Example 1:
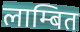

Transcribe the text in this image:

लाम्बित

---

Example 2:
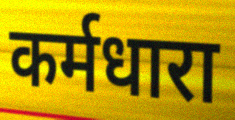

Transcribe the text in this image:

कर्मधारा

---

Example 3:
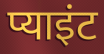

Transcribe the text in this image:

प्याइंट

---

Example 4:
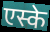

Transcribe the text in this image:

एस्के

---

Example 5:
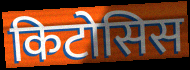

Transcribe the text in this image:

किटोसिस